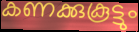
കണക്കുകൂട്ടും